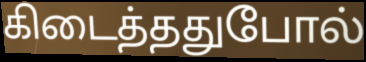
கிடைத்ததுபோல்